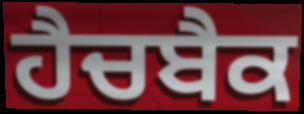
ਹੈਚਬੈਕ